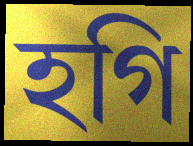
হগি